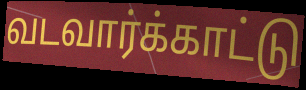
வடவார்க்காட்டு